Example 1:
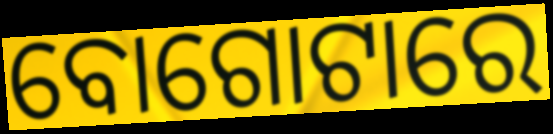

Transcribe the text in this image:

ବୋଗୋଟାରେ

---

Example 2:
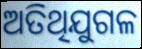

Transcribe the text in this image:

ଅତିଥିଯୁଗଳ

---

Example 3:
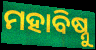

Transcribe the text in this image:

ମହାବିଷ୍ନୁ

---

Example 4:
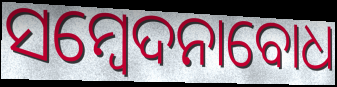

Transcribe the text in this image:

ସମ୍ବେଦନାବୋଧ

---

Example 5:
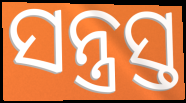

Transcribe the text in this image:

ସନ୍ତ୍ରସ୍ତ